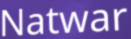
Natwar